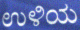
ಉಳಿಯ